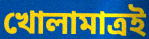
খোলামাত্রই